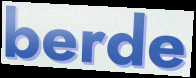
berde